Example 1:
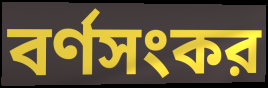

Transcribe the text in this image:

বর্ণসংকর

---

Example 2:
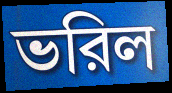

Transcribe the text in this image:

ভরিল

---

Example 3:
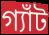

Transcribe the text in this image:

গ্যাঁট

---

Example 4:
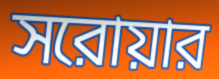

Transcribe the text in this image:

সরোয়ার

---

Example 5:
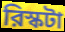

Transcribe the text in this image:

রিস্কটা